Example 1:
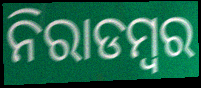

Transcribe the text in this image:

ନିରାଡମ୍ଵର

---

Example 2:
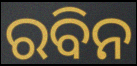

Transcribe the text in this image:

ରବିନ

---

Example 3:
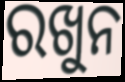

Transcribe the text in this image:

ରଖୁନ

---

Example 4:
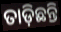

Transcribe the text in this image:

ତାଡ଼ିଛନ୍ତି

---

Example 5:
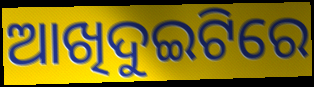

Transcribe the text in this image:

ଆଖିଦୁଇଟିରେ